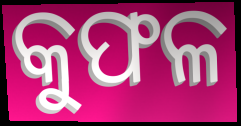
କୁଫଳ